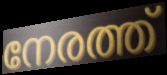
നേരത്ത്